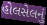
હોલસેલનું